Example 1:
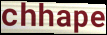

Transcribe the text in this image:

chhape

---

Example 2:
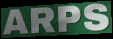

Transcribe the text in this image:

ARPS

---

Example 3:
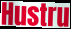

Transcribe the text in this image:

Hustru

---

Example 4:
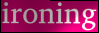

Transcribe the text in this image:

ironing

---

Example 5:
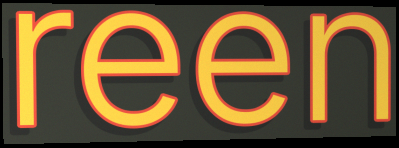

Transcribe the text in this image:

reen